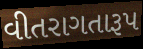
વીતરાગતારૂપ